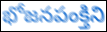
భోజనపంక్తిని